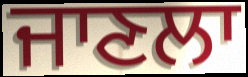
ਜਾਣਲਾ